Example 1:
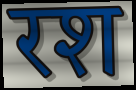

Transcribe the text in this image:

रश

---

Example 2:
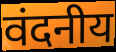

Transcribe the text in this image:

वंदनीय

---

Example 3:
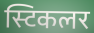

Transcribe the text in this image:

स्टिकलर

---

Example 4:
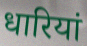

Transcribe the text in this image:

धारियां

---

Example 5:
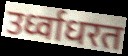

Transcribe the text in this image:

उर्ध्वाधरत